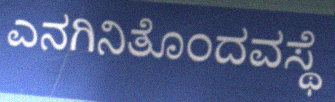
ಎನಗಿನಿತೊಂದವಸ್ಥೆ